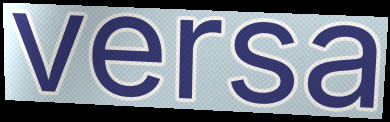
versa